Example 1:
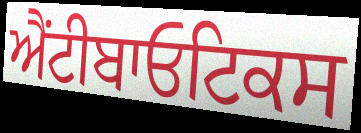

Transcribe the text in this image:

ਐਂਟੀਬਾਓਟਿਕਸ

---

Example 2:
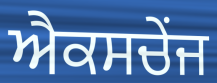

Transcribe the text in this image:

ਐਕਸਚੇਂਜ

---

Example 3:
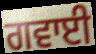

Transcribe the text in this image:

ਗਵਾਈ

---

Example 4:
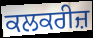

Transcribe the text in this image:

ਕਲਕਰੀਜ਼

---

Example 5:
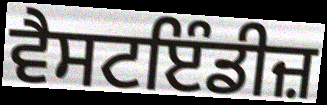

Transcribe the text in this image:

ਵੈਸਟਇੰਡੀਜ਼